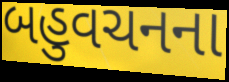
બહુવચનના